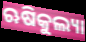
ଋଷିକୁଲ୍ୟା